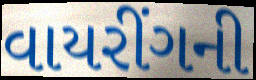
વાયરીંગની